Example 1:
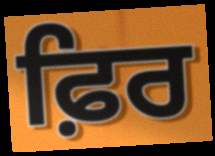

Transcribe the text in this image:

ਫ਼ਿਰ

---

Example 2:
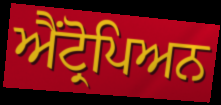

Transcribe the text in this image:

ਐਂਟ੍ਰੋਪਿਅਨ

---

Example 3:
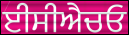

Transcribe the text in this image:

ਈਸੀਐਚਓ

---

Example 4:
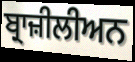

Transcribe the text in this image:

ਬ੍ਰਾਜ਼ੀਲੀਅਨ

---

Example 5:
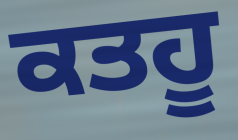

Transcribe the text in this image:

ਕਤਹੂ